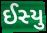
ઈસ્યુ